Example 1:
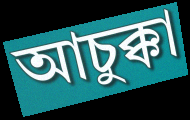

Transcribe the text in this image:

আচুক্কা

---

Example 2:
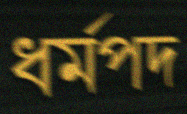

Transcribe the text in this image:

ধর্মপদ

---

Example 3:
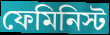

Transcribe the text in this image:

ফেমিনিস্ট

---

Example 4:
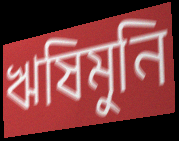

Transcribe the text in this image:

ঋষিমুনি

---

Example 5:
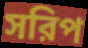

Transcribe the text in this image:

সরিপ